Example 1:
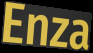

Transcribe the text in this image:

Enza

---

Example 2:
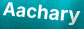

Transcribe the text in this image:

Aachary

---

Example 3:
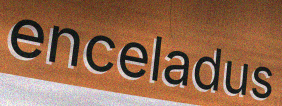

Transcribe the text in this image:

enceladus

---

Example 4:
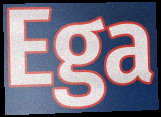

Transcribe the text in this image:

Ega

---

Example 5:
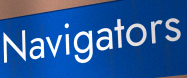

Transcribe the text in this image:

Navigators